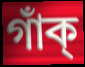
গাঁক্